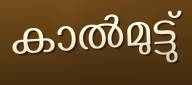
കാൽമുട്ടു്